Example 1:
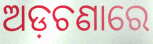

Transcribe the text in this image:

ଅଡ଼ଚଣାରେ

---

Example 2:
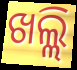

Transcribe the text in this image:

ଖଲ୍ଲି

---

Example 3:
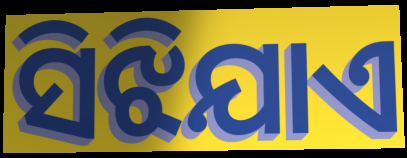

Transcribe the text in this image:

ସିଝିଯାଏ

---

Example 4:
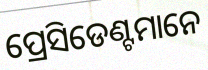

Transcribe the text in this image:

ପ୍ରେସିଡେଣ୍ଟମାନେ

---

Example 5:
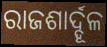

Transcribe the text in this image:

ରାଜଶାର୍ଦ୍ଦୂଳ